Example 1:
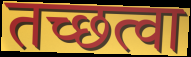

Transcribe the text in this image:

तच्छत्वा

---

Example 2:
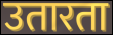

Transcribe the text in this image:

उतारता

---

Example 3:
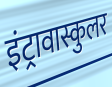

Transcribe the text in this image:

इंट्रावास्कुलर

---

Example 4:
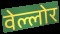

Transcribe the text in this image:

वेल्लोर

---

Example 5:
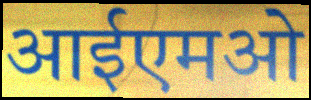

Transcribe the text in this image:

आईएमओ